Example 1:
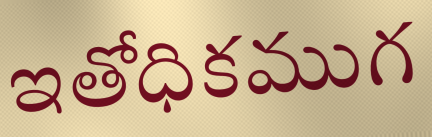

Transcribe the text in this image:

ఇతోధికముగ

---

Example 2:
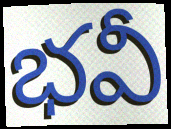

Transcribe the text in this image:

భవీ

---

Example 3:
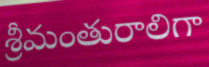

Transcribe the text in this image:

శ్రీమంతురాలిగా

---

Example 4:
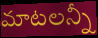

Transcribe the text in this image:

మాటలన్నీ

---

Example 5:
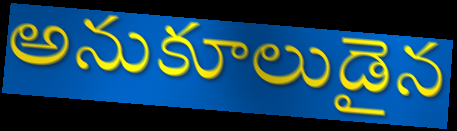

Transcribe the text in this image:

అనుకూలుడైన